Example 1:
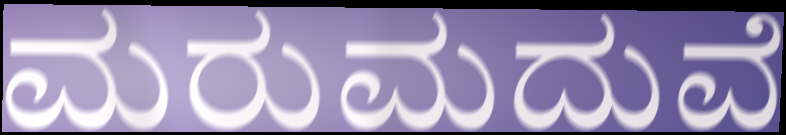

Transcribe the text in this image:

ಮರುಮದುವೆ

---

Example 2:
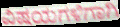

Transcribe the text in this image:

ವಿಷಯಗಳಿಗಾಗಿ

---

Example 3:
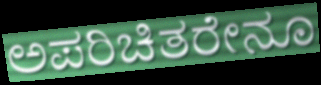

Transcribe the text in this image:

ಅಪರಿಚಿತರೇನೂ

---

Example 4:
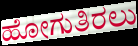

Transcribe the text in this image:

ಹೋಗುತಿರಲು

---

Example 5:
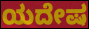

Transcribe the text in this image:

ಯದೇಷ